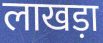
लाखड़ा